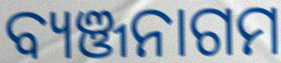
ବ୍ୟଞ୍ଜନାଗମ